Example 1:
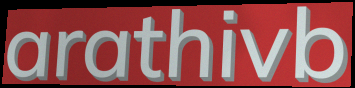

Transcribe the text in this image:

arathivb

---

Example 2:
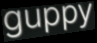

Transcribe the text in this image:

guppy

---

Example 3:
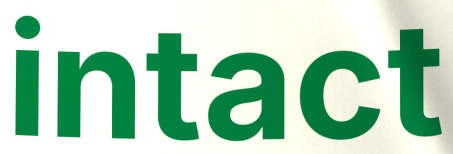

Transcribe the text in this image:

intact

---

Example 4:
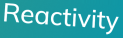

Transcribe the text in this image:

Reactivity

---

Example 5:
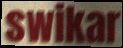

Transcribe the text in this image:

swikar